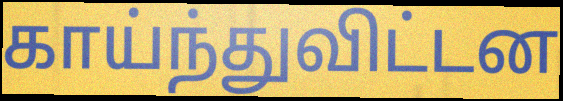
காய்ந்துவிட்டன